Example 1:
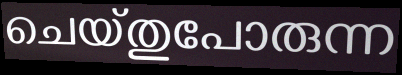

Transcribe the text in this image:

ചെയ്തുപോരുന്ന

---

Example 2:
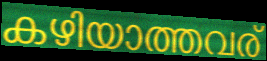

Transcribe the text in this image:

കഴിയാത്തവര്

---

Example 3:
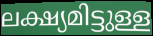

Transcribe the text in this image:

ലക്ഷ്യമിട്ടുള്ള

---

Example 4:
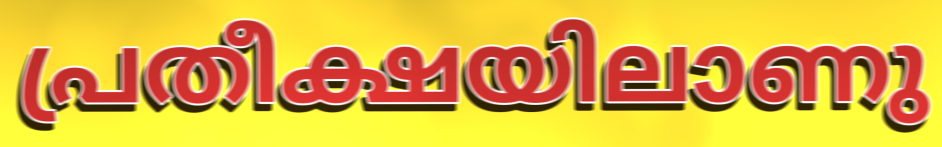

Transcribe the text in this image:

പ്രതീക്ഷയിലാണു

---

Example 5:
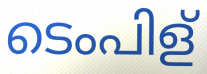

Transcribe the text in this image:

ടെംപിള്